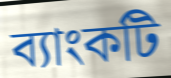
ব্যাংকটি